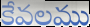
కేవలము